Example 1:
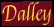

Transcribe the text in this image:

Dalley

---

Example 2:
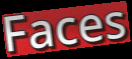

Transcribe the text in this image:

Faces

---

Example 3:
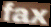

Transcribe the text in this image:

fax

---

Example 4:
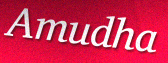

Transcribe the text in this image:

Amudha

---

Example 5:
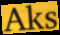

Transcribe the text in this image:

Aks